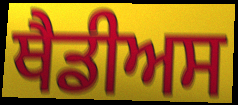
ਥੈਡੀਅਸ